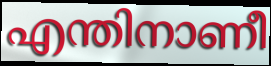
എന്തിനാണീ